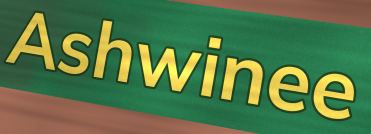
Ashwinee